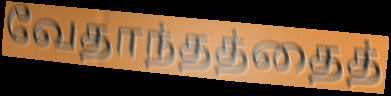
வேதாந்தத்தைத்